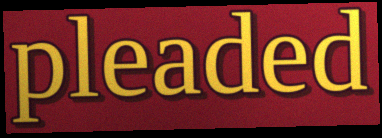
pleaded